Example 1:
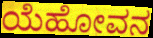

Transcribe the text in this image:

ಯೆಹೋವನ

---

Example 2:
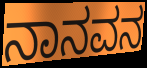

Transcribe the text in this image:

ನಾನವನ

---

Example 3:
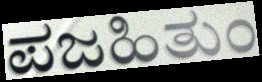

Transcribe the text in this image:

ಪಜಹಿತುಂ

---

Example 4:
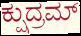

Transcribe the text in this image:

ಕ್ಷುದ್ರಮ್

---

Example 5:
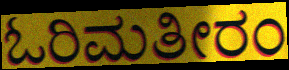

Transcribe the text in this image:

ಓರಿಮತೀರಂ